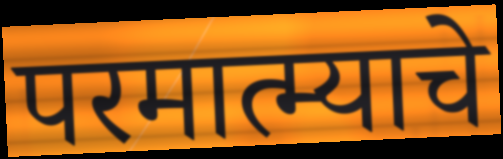
परमात्म्याचे